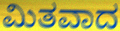
ಮಿತವಾದ